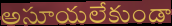
అసూయలేకుండా